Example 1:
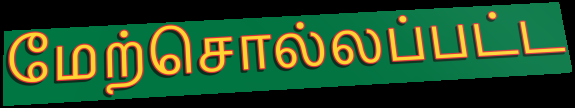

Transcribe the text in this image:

மேற்சொல்லப்பட்ட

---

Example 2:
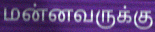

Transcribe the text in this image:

மன்னவருக்கு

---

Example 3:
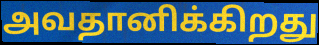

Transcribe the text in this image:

அவதானிக்கிறது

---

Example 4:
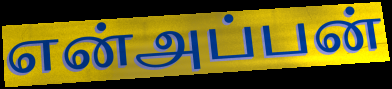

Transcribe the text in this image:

என்அப்பன்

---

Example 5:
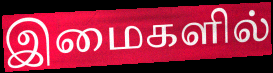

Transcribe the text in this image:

இமைகளில்